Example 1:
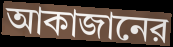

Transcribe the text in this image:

আকাজানের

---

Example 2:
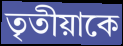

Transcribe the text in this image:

তৃতীয়াকে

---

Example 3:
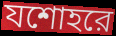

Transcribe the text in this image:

যশোহরে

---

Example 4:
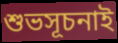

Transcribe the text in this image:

শুভসূচনাই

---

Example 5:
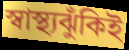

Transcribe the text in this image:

স্বাস্থ্যঝুঁকিই